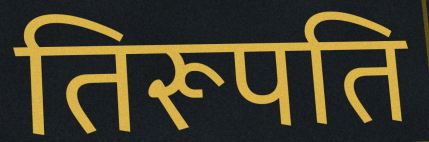
तिरूपति